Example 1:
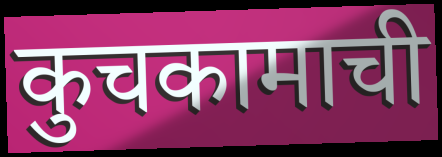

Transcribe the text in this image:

कुचकामाची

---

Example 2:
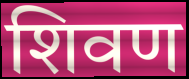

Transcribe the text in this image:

शिवण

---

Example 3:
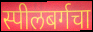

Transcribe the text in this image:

स्पीलबर्गचा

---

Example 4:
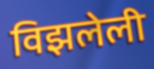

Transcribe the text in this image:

विझलेली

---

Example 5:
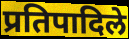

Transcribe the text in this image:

प्रतिपादिले